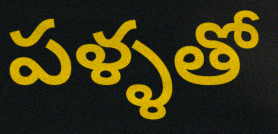
పళ్ళతో